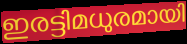
ഇരട്ടിമധുരമായി